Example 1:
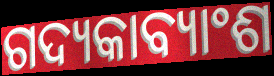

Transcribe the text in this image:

ଗଦ୍ୟକାବ୍ୟାଂଶ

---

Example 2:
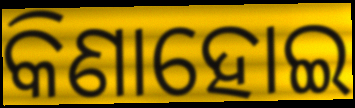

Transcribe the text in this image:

କିଣାହୋଇ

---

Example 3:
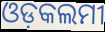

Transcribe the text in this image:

ଓଡ଼କଲମୀ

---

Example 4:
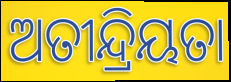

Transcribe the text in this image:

ଅତୀନ୍ଦ୍ରିୟତା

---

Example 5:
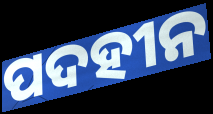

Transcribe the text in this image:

ପଦହୀନ